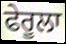
ਫੇਰੂਲਾ